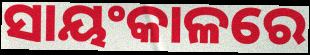
ସାୟଂକାଳରେ